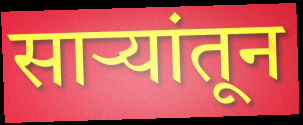
साऱ्यांतून